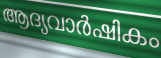
ആദ്യവാർഷികം